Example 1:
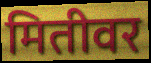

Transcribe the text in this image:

मितीवर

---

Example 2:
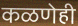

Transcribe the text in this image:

कळणेही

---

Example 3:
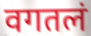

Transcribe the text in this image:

वगतलं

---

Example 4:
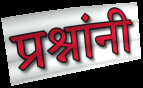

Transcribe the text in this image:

प्रश्नांनी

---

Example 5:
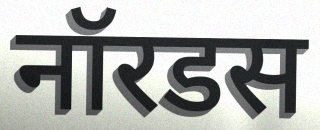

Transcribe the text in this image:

नॉरडस